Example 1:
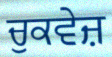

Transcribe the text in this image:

ਚੁਕਵੇਜ਼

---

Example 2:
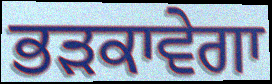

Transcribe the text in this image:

ਭੜਕਾਵੇਗਾ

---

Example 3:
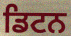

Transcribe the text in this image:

ਡਿਟਨ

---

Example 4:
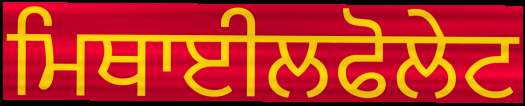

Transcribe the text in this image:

ਮਿਥਾਈਲਫੋਲੇਟ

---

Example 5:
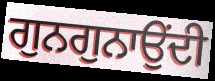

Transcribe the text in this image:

ਗੁਨਗੁਨਾਉਂਦੀ